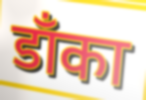
डाँका